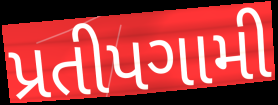
પ્રતીપગામી